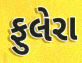
ફુલેરા